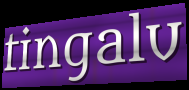
tingalu